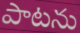
పాటను